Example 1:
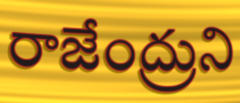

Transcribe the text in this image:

రాజేంద్రుని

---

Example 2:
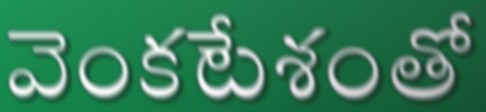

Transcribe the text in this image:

వెంకటేశంతో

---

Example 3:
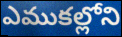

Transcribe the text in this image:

ఎముకల్లోని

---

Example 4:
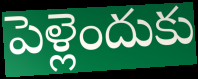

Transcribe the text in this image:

పెళ్లెందుకు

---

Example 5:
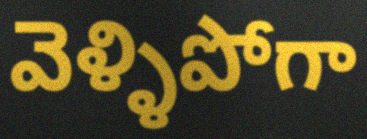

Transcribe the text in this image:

వెళ్ళిపోగా